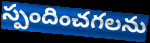
స్పందించగలను